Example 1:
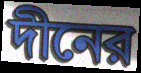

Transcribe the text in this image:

দীনের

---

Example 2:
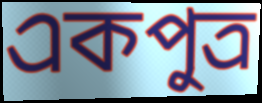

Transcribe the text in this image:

একপুত্র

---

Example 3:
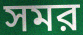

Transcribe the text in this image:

সমর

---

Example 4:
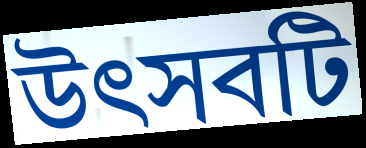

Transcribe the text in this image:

উৎসবটি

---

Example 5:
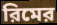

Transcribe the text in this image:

রিমের